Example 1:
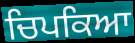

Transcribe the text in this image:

ਚਿਪਕਿਆ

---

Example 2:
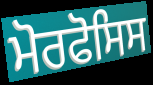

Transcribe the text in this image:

ਮੋਰਫੋਸਿਸ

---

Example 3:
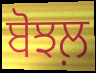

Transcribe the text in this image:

ਬੋਝਲ਼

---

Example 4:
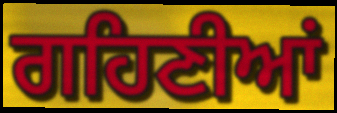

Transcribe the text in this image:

ਗਹਿਣੀਆਂ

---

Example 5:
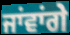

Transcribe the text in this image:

ਜਾਂਵਾਂਗੇ